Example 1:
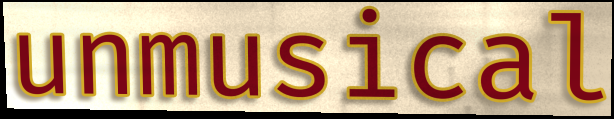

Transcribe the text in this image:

unmusical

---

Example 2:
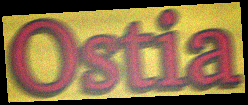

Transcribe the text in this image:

Ostia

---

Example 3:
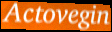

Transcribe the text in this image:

Actovegin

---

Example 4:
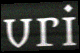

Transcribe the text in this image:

uri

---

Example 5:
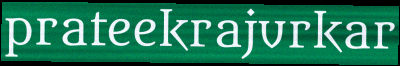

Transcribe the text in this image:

prateekrajurkar